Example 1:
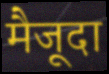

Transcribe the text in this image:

मैजूदा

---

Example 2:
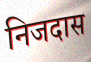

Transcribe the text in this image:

निजदास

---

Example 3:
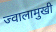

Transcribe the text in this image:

ज्वालामुखी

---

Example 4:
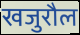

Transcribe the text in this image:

खजुरौल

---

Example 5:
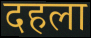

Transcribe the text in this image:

दहला